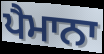
ਪੈਮਾਨਾ